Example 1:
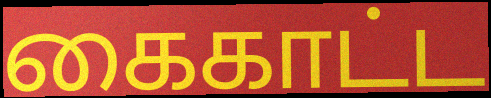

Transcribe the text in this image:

கைகாட்ட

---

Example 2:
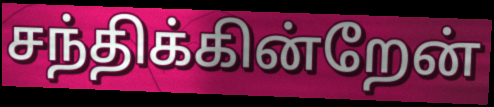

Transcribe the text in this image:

சந்திக்கின்றேன்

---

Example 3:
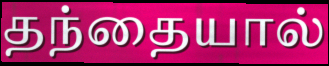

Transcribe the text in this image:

தந்தையால்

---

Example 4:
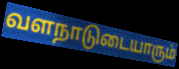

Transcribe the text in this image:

வளநாடுடையாரும்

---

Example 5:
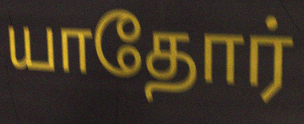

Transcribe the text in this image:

யாதோர்